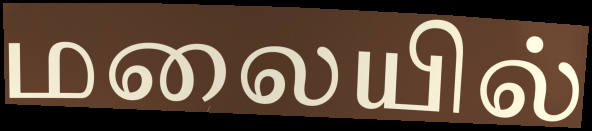
மலையில்